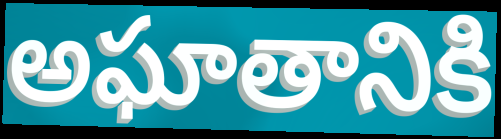
అఘాతానికి